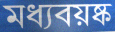
মধ্যবয়ষ্ক